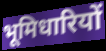
भूमिधारियों